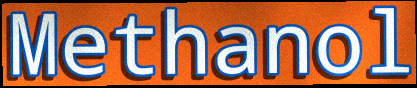
Methanol